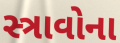
સ્ત્રાવોના